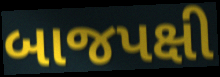
બાજપક્ષી